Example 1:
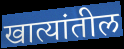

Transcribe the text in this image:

खात्यांतील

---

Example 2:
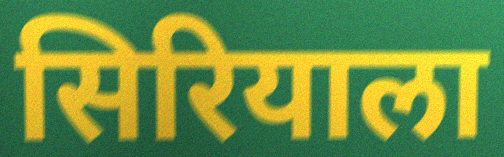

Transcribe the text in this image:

सिरियाला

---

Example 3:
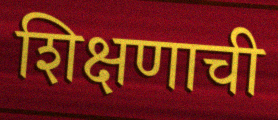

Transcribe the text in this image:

शिक्षणाची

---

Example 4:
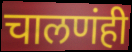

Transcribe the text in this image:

चालणंही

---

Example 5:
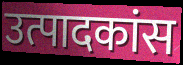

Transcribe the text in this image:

उत्पादकांस